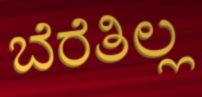
ಬೆರೆತಿಲ್ಲ